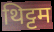
थिट्टम